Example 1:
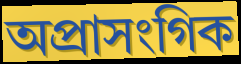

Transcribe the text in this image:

অপ্ৰাসংগিক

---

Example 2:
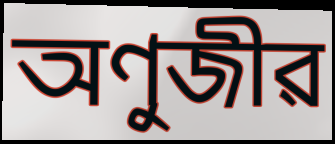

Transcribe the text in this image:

অণুজীৱ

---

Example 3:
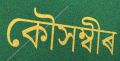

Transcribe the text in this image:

কৌসম্বীৰ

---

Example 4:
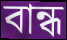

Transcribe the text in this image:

বান্ধ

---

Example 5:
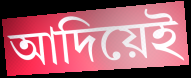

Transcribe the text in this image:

আদিয়েই